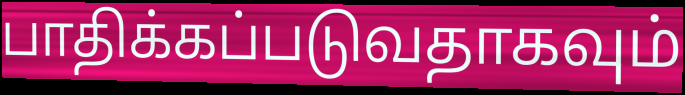
பாதிக்கப்படுவதாகவும்